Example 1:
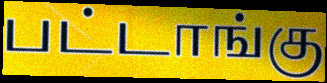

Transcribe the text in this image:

பட்டாங்கு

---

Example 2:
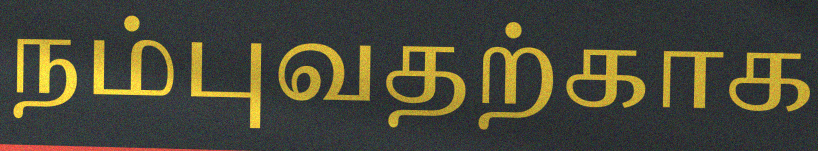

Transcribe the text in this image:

நம்புவதற்காக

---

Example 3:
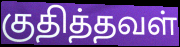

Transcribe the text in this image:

குதித்தவள்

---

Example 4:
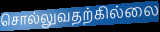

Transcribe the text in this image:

சொல்லுவதற்கில்லை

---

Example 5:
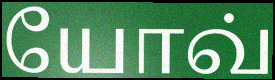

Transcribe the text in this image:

யோவ்